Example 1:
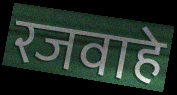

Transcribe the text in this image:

रजवाहे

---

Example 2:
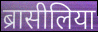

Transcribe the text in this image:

ब्रासीलिया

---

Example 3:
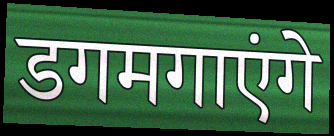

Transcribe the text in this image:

डगमगाएंगे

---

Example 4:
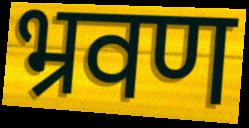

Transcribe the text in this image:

भ्रवण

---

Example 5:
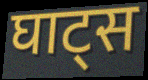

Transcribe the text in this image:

घाट्स